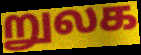
றுலக